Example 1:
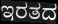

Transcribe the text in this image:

ಇರತದ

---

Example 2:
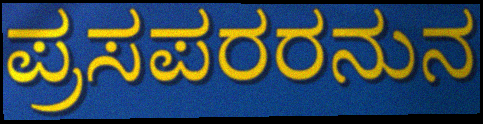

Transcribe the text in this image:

ಪ್ರಸಪರರನುನ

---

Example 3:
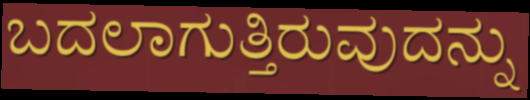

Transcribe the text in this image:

ಬದಲಾಗುತ್ತಿರುವುದನ್ನು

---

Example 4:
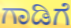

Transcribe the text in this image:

ಗಾಡಿಗೆ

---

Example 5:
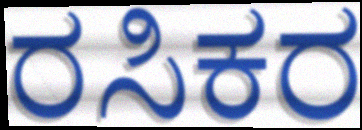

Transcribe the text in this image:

ರಸಿಕರ